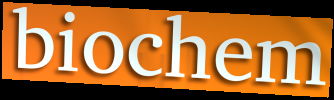
biochem